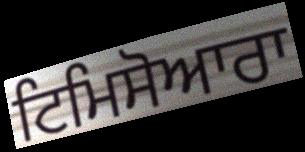
ਟਿਮਿਸੋਆਰਾ